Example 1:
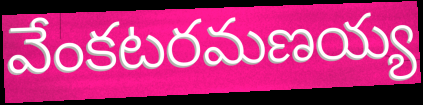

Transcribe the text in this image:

వేంకటరమణయ్య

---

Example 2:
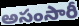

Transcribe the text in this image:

అసంసారీ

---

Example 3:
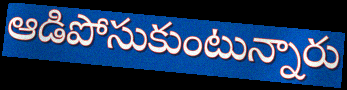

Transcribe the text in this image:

ఆడిపోసుకుంటున్నారు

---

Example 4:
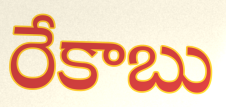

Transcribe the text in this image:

రేకాబు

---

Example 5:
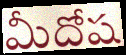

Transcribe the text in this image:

మీదోష